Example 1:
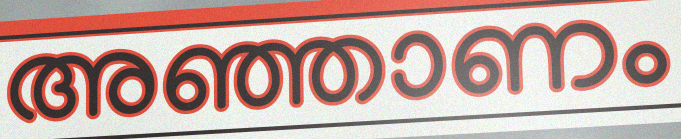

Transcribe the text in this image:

അഞ്ഞാണം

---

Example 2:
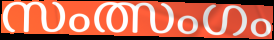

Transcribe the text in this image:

സംത്സംഗം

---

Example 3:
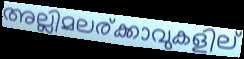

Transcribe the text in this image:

അല്ലിമലര്ക്കാവുകളില്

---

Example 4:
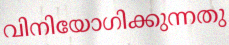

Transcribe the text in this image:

വിനിയോഗിക്കുന്നതു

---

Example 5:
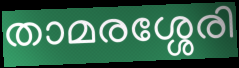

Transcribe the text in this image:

താമരശ്ശേരി